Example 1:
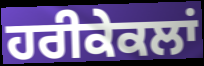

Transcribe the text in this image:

ਹਰੀਕੇਕਲਾਂ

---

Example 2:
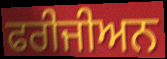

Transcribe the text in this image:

ਫਰੀਜੀਅਨ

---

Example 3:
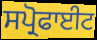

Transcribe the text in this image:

ਸਪ੍ਰੋਫਾਈਟ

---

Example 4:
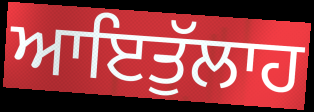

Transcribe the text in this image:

ਆਇਤੁੱਲਾਹ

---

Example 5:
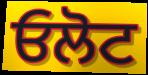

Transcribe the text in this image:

ਓਲੋਟ